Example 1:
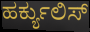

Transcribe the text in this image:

ಹರ್ಕ್ಯುಲಿಸ್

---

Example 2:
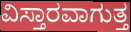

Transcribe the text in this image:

ವಿಸ್ತಾರವಾಗುತ್ತ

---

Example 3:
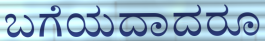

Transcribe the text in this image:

ಬಗೆಯದಾದರೂ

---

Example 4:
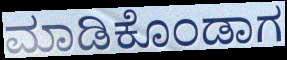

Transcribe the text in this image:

ಮಾಡಿಕೊಂಡಾಗ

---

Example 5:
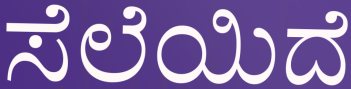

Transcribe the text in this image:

ಸೆಲೆಯಿದೆ